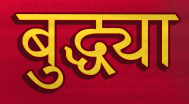
बुद्ध्या